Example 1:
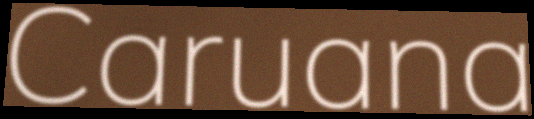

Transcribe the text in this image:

Caruana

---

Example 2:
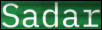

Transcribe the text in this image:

Sadar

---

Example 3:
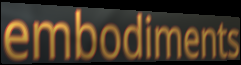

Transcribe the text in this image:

embodiments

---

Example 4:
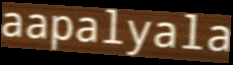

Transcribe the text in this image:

aapalyala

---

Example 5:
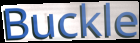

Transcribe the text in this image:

Buckle